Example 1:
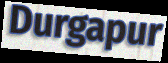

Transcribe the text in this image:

Durgapur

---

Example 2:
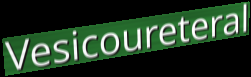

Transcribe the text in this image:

Vesicoureteral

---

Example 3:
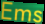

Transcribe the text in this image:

Ems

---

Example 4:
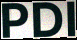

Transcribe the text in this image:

PDI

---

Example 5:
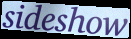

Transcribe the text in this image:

sideshow